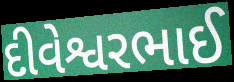
દીવેશ્વરભાઈ